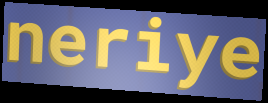
neriye